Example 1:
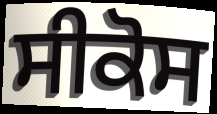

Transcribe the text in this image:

ਸੀਕੋਸ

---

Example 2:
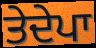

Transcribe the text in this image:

ਤੇਦੇਪਾ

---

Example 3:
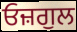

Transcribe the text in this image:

ਓਜ਼ਗੁਲ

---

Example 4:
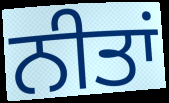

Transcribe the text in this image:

ਨੀਤਾਂ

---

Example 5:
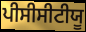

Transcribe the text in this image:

ਪੀਸੀਸੀਟੀਯੂ